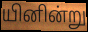
யினின்று